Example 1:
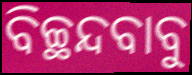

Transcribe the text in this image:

ବିଚ୍ଛନ୍ଦବାବୁ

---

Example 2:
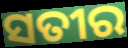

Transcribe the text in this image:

ସତୀର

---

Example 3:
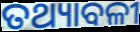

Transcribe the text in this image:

ତଥ୍ୟାବଳୀ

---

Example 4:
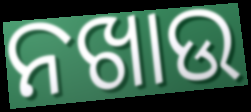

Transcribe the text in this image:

ନଖାଉ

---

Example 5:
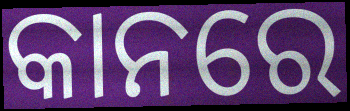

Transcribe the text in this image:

କାନରେ